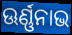
ଊର୍ଣ୍ଣନାଭ